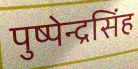
पुष्पेन्द्रसिंह